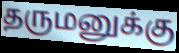
தருமனுக்கு